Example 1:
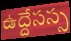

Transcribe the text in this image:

ఉద్దేసస్స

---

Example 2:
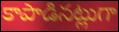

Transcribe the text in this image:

కాపాడినట్లుగా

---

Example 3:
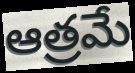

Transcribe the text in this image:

ఆత్రమే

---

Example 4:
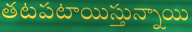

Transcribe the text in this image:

తటపటాయిస్తున్నాయి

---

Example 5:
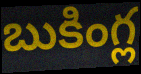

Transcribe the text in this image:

బుకింగ్ల